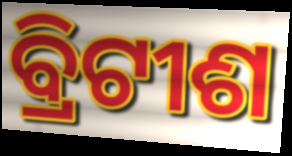
ବ୍ରିଟୀଶ